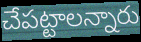
చేపట్టాలన్నారు